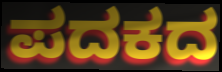
ಪದಕದ